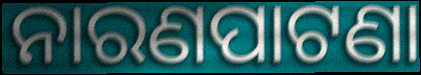
ନାରଣପାଟଣା